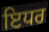
ਇਧਰ